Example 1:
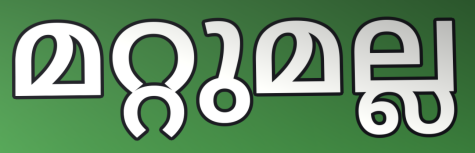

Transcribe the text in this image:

മറ്റുമല്ല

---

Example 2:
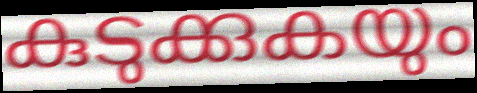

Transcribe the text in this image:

കുടുക്കുകയും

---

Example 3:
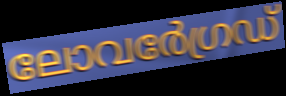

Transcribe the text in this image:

ലോവർേഗ്രഡ്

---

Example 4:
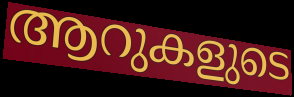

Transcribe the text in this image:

ആറുകളുടെ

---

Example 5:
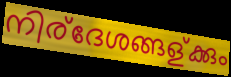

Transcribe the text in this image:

നിര്ദേശങ്ങള്ക്കും